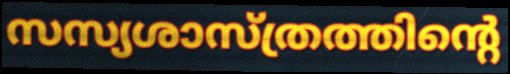
സസ്യശാസ്ത്രത്തിന്റെ